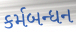
કર્મબન્ધન